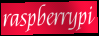
raspberrypi